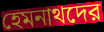
হেমনাথদের